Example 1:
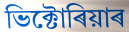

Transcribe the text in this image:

ভিক্টোৰিয়াৰ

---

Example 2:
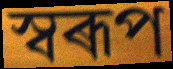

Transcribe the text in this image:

স্বৰূপ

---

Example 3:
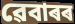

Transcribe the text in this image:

ৱেবাৰৰ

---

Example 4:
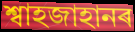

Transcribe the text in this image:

শ্বাহজাহানৰ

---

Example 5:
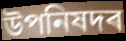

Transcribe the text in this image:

উপনিষদৰ